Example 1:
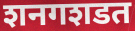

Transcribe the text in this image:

शनगशडत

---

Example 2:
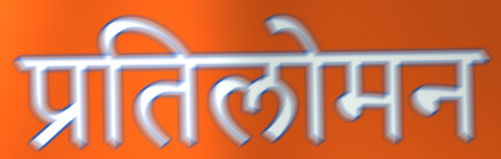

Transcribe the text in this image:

प्रतिलोमन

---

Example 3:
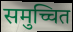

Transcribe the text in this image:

समुच्चित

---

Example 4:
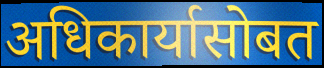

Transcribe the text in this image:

अधिकार्यासोबत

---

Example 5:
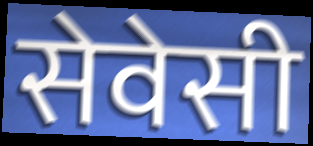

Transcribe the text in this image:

सेवेसी